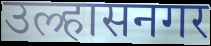
उल्हासनगर